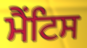
ਮੈਂਟਿਸ